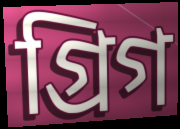
গ্রিগ